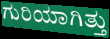
ಗುರಿಯಾಗಿತ್ತು